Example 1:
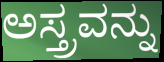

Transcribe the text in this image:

ಅಸ್ತ್ರವನ್ನು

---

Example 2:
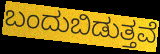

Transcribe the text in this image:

ಬಂದುಬಿಡುತ್ತವೆ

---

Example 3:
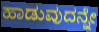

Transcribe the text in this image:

ಹಾಡುವುದನ್ನೇ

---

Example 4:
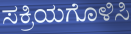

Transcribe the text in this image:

ಸಕ್ರಿಯಗೊಳಿಸಿ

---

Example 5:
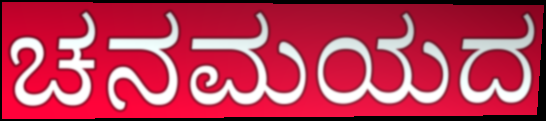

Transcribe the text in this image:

ಚನಮಯದ